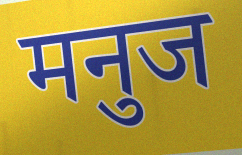
मनुज